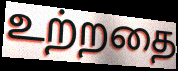
உற்றதை